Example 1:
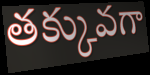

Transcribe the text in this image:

తక్కువగా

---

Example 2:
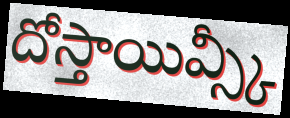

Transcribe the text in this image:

దోస్తాయివ్స్కీ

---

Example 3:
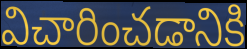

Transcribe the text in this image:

విచారించడానికి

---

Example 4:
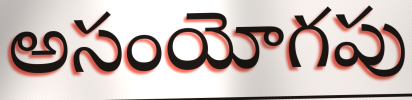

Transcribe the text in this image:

అసంయోగపు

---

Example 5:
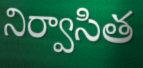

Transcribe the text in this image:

నిర్వాసిత